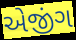
એજીંગ